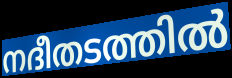
നദീതടത്തിൽ